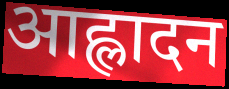
आह्लादन